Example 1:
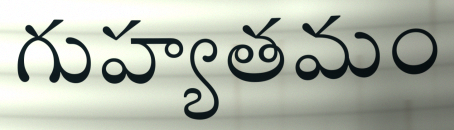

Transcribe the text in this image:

గుహ్యతమం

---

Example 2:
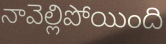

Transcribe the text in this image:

నావెల్లిపోయింది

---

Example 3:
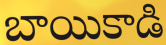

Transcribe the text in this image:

బాయికాడి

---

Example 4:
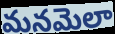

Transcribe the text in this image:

మనమెలా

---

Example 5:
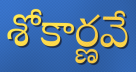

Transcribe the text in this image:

శోకార్ణవే